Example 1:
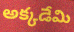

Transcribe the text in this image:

అక్కడేమి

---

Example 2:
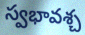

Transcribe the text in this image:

స్వభావశ్చ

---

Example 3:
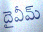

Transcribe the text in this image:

దైవీమ్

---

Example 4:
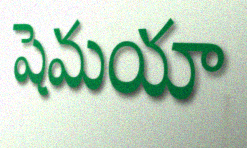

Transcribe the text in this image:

షెమయా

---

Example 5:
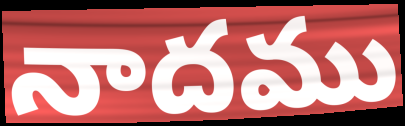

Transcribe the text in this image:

నాదము